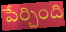
పేర్చింది